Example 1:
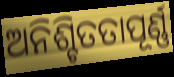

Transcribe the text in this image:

ଅନିଶ୍ଚିତତାପୂର୍ଣ୍ଣ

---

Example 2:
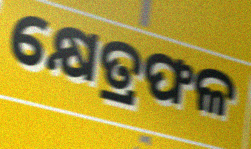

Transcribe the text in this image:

କ୍ଷେତ୍ରଫଳ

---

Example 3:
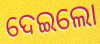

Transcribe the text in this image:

ଦେଇଲୋ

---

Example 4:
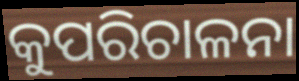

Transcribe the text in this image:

କୁପରିଚାଳନା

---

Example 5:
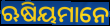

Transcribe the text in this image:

ଋଷିୟମାନେ